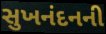
સુખનંદનની